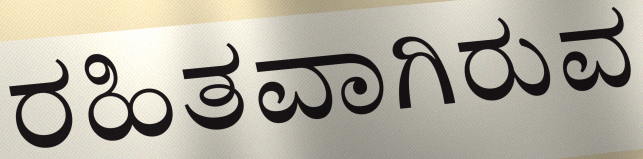
ರಹಿತವಾಗಿರುವ